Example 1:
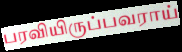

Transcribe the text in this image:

பரவியிருப்பவராய்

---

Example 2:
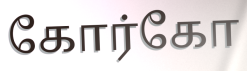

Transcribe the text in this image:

கோர்கோ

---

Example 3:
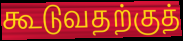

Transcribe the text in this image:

கூடுவதற்குத்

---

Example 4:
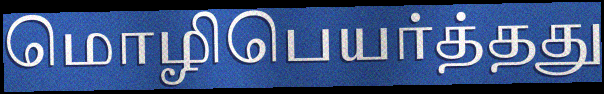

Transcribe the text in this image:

மொழிபெயர்த்தது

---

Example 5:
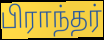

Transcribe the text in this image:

பிராந்தர்